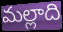
మల్లాది